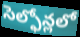
సెల్ఫోన్లలో